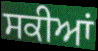
ਸਕੀਆਂ